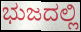
ಭುಜದಲ್ಲಿ